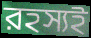
রহস্যই